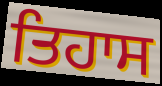
ਤਿਹਾਸ